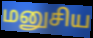
மனுசிய